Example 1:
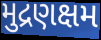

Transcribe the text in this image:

મુદ્રણક્ષમ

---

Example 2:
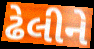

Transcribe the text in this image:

ઢેલીને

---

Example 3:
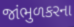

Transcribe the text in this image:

જાંભુળકરના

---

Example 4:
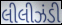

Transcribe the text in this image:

લીલીઝંડી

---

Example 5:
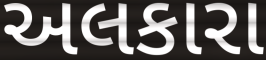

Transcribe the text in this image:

અલકારા